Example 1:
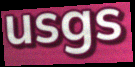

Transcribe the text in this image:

usgs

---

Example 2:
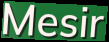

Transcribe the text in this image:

Mesir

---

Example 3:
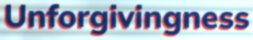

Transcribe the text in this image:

Unforgivingness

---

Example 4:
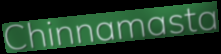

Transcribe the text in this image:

Chinnamasta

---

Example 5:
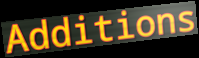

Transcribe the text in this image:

Additions